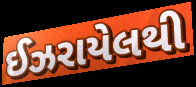
ઈઝરાયેલથી